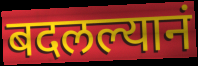
बदलल्यानं